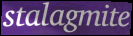
stalagmite